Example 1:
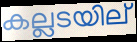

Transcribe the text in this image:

കല്ലടയില്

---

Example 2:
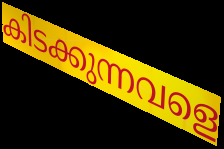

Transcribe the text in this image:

കിടക്കുന്നവളെ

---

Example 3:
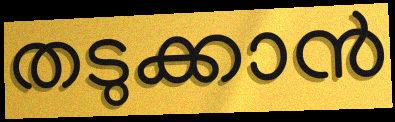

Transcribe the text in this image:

തടുക്കാൻ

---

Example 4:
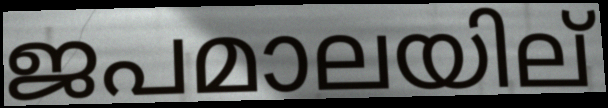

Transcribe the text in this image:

ജപമാലയില്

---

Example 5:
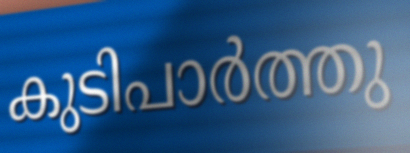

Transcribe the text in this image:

കുടിപാർത്തു